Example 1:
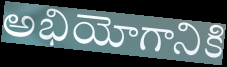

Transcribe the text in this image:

అభియోగానికి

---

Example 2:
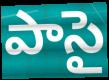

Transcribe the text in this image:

పాసై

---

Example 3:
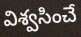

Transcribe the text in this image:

విశ్వసించే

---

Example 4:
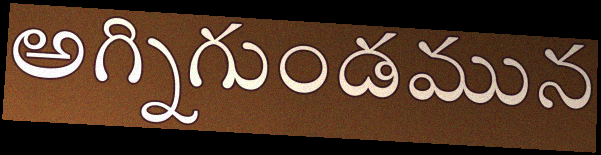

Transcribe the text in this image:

అగ్నిగుండమున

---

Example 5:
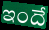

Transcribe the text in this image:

ఇందే